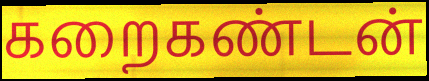
கறைகண்டன்